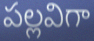
పల్లవిగా